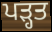
ਪਡ਼੍ਹਤ